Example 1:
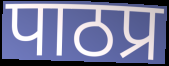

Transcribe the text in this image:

पाठप्र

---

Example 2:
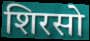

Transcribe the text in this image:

शिरसो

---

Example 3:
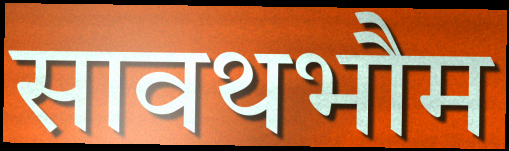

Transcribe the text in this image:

सावथभौम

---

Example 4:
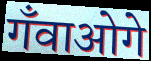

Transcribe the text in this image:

गँवाओगे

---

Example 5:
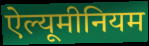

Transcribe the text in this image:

ऐल्यूमीनियम